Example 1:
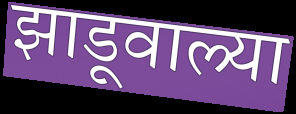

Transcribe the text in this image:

झाडूवाल्या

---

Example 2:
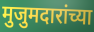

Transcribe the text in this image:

मुजुमदारांच्या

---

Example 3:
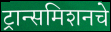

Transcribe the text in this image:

ट्रान्समिशनचे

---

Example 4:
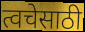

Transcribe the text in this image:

त्वचेसाठी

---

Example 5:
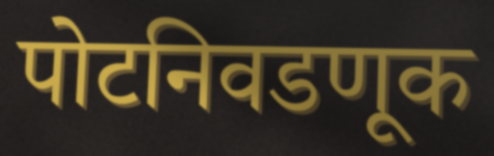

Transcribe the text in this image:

पोटनिवडणूक